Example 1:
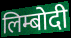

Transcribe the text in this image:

लिम्बोदी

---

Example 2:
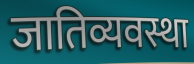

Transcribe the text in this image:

जातिव्यवस्था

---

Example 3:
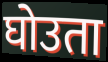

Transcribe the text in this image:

घोउता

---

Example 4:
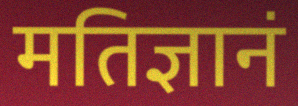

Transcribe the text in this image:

मतिज्ञानं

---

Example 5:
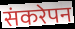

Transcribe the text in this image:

संकरेपन